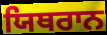
ਯਿਥਰਾਨ